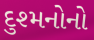
દુશ્મનોનો